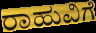
ರಾಹುವಿಗೆ